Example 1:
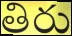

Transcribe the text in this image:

తిరు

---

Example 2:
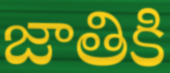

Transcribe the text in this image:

జాతికి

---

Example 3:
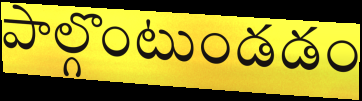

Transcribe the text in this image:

పాల్గొంటుండడం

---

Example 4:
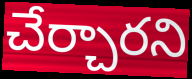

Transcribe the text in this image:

చేర్చారని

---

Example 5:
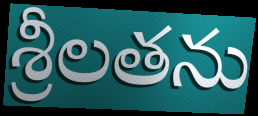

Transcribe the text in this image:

శ్రీలతను